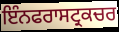
ਇੰਨਫਰਾਸਟ੍ਰਕਚਰ